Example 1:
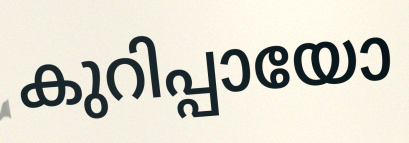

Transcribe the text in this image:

കുറിപ്പായോ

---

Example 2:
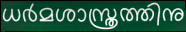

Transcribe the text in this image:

ധർമശാസ്ത്രത്തിനു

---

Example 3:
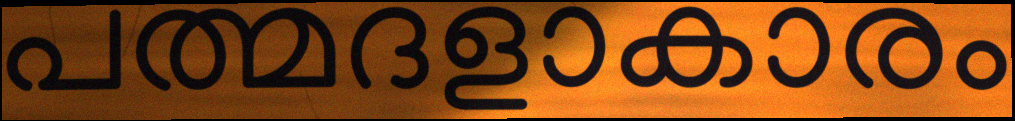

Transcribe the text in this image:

പത്മദളാകാരം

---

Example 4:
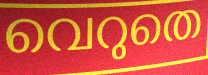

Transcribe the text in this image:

വെറുതെ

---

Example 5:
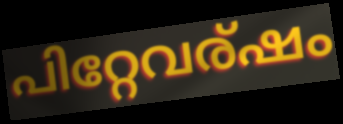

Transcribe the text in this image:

പിറ്റേവര്ഷം